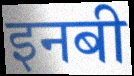
इनबी